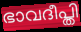
ഭാവദീപ്തി